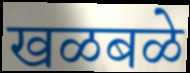
खळबळे